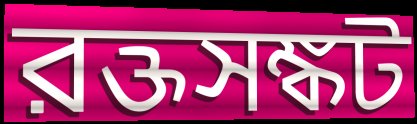
রক্তসঙ্কট